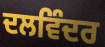
ਦਲਵਿੰਦਰ